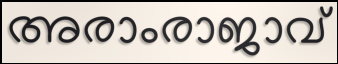
അരാംരാജാവ്